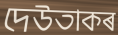
দেউতাকৰ